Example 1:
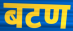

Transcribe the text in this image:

बटण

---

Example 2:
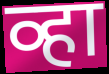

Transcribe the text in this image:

व्हा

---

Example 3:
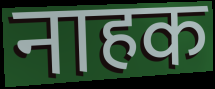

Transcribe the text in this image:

नाहक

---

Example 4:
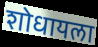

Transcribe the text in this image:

शोधायला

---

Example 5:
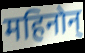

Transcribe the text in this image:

महिनोन्